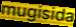
mugisida